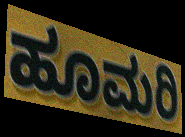
ಹೂಮರಿ